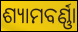
ଶ୍ୟାମବର୍ଣ୍ଣା